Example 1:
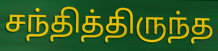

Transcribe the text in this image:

சந்தித்திருந்த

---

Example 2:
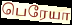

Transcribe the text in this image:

பெரேயா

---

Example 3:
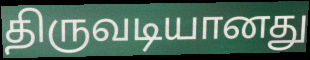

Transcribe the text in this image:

திருவடியானது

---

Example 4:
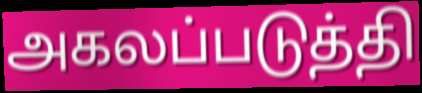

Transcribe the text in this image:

அகலப்படுத்தி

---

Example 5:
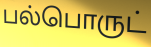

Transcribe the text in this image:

பல்பொருட்